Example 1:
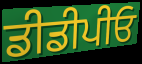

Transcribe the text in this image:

ਡੀਡੀਪੀਓ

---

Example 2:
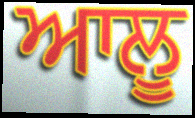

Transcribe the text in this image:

ਆਲੂ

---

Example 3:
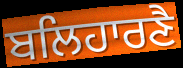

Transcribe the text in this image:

ਬਲਿਹਾਰਣੈ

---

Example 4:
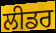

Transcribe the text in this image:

ਲੀਡਰ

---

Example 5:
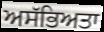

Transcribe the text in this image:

ਅਸੱਭਿਅਤਾ